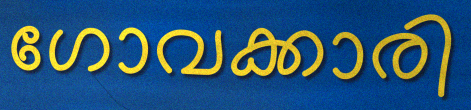
ഗോവക്കാരി